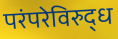
परंपरेविरुद्ध